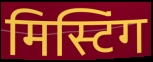
मिस्टिंग